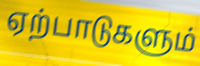
ஏற்பாடுகளும்